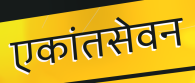
एकांतसेवन